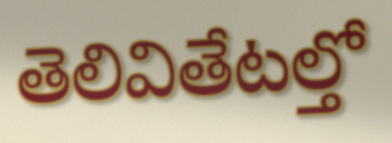
తెలివితేటల్తో